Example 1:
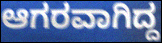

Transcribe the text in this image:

ಆಗರವಾಗಿದ್ದ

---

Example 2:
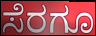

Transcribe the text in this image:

ಸೆರಗೂ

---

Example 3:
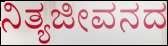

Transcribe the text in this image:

ನಿತ್ಯಜೀವನದ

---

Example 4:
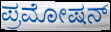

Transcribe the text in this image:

ಪ್ರಮೋಷನ್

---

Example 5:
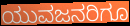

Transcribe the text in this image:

ಯುವಜನರಿಗೂ